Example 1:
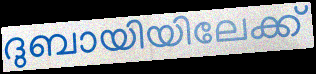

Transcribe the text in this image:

ദുബായിയിലേക്ക്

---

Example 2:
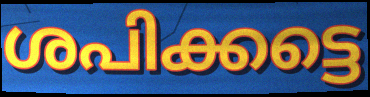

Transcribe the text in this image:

ശപിക്കട്ടെ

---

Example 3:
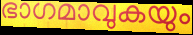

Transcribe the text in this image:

ഭാഗമാവുകയും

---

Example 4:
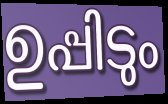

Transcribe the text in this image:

ഉപ്പിടും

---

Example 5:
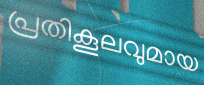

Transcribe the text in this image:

പ്രതികൂലവുമായ